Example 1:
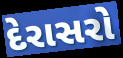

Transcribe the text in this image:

દેરાસરો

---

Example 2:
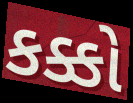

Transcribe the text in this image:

કક્કો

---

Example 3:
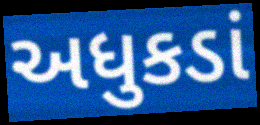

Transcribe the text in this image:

અધુકડાં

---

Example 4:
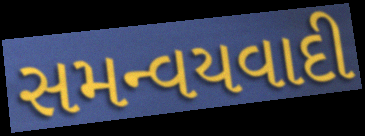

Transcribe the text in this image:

સમન્વયવાદી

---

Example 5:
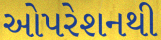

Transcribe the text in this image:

ઓપરેશનથી